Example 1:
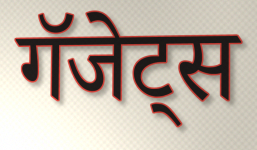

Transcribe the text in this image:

गॅजेट्स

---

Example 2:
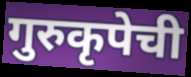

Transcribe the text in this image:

गुरुकृपेची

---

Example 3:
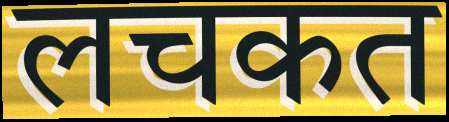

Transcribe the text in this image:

लचकत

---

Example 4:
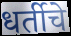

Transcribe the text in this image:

धर्तीचे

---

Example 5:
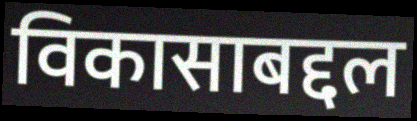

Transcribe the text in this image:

विकासाबद्दल